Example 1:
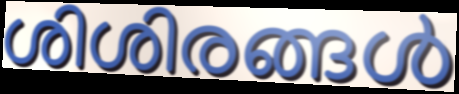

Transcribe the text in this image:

ശിശിരങ്ങൾ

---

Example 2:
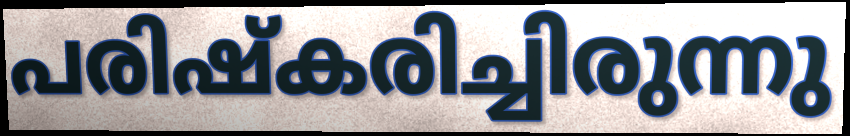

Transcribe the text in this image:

പരിഷ്കരിച്ചിരുന്നു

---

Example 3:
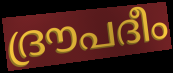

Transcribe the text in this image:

ദ്രൗപദീം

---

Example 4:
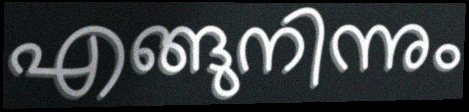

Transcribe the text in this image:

എങ്ങുനിന്നും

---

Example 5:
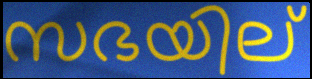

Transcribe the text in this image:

സഭയില്